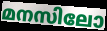
മനസിലോ